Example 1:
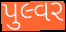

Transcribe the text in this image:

પુલ્વર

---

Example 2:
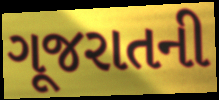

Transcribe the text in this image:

ગૂજરાતની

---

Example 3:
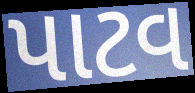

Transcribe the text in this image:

પાટવ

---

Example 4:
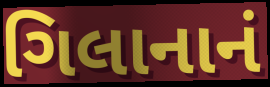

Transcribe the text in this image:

ગિલાનાનં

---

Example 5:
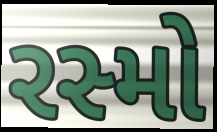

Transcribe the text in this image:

રસ્મો